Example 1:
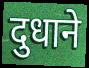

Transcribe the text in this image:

दुधाने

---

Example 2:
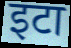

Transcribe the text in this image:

इटा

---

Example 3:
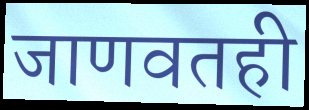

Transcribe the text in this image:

जाणवतही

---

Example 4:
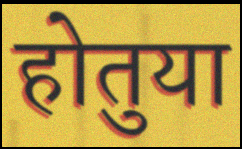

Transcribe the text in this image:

होतुया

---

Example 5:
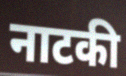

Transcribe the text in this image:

नाटकी